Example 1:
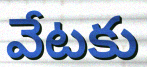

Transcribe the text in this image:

వేటకు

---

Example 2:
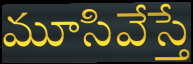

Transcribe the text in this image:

మూసివేస్తే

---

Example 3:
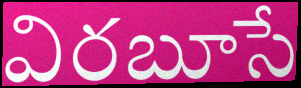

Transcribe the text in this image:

విరబూసే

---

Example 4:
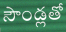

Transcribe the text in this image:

సౌండ్లతో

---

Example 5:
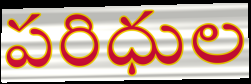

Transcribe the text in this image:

పరిధుల